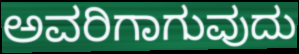
ಅವರಿಗಾಗುವುದು